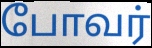
போவர்